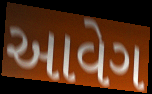
આવેગ